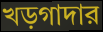
খড়গাদার